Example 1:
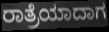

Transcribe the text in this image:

ರಾತ್ರೆಯಾದಾಗ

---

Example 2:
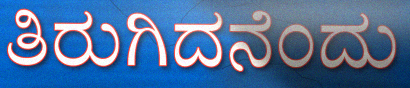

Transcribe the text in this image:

ತಿರುಗಿದನೆಂದು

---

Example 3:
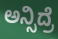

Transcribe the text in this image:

ಅನ್ಸಿದ್ರೆ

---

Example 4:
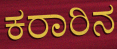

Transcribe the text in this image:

ಕರಾರಿನ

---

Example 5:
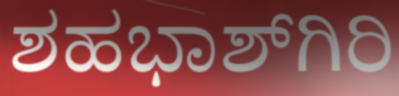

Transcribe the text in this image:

ಶಹಭಾಶ್‌ಗಿರಿ